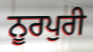
ਨੂਰਪੁਰੀ